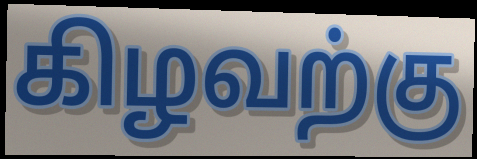
கிழவற்கு